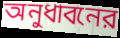
অনুধাবনের